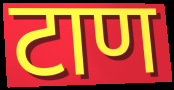
टाण